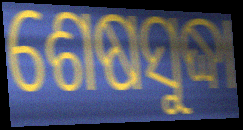
ଶେଷସୁଦ୍ଧା